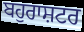
ਬਹੁਰਾਸ਼ਟਰ